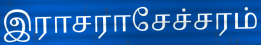
இராசராசேச்சரம்